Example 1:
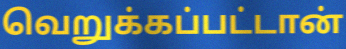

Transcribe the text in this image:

வெறுக்கப்பட்டான்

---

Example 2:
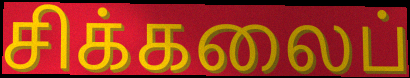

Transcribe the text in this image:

சிக்கலைப்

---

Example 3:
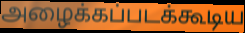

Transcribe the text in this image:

அழைக்கப்படக்கூடிய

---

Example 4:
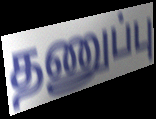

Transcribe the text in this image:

தணுப்பு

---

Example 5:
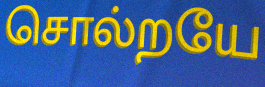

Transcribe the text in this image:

சொல்றயே